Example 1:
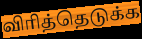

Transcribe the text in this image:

விரித்தெடுக்க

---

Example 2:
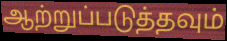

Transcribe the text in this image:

ஆற்றுப்படுத்தவும்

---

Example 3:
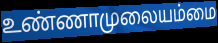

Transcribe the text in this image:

உண்ணாமுலையம்மை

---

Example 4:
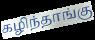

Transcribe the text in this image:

கழிந்தாங்கு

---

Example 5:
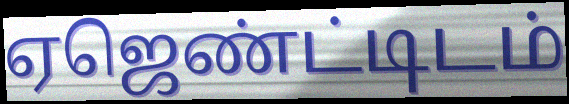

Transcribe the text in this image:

ஏஜெண்ட்டிடம்